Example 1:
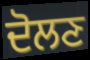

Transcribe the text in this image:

ਦੋਲਣ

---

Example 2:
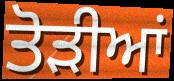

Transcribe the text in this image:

ਤੋਡ਼ੀਆਂ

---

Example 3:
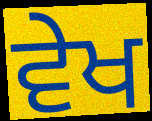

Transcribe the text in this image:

ਵੇਖ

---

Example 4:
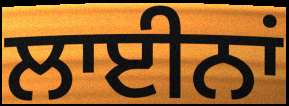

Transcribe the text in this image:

ਲਾਈਨਾਂ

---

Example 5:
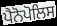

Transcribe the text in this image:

ਪੈਨੋਪੋਲਿਸ